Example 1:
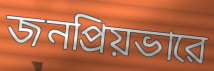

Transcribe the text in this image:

জনপ্ৰিয়ভাৱে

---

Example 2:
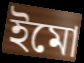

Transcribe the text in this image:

ইমো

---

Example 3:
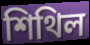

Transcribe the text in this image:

শিথিল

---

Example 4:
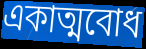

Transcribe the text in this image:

একাত্মবোধ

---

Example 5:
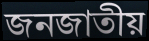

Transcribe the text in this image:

জনজাতীয়